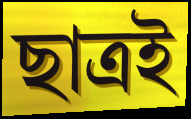
ছাত্ৰই